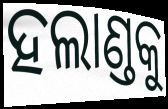
ହଲାଣ୍ଡକୁ